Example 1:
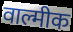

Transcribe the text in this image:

वाल्मीक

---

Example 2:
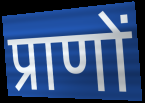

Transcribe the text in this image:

प्राणों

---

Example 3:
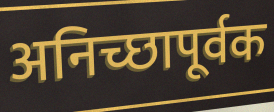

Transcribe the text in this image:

अनिच्छापूर्वक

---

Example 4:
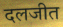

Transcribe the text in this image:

दलजीत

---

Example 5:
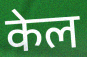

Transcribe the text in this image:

केल